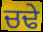
ਚਢੇ